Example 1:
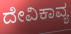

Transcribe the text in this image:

ದೇವಿಕಾವ್ಯ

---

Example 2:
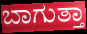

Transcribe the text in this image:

ಬಾಗುತ್ತಾ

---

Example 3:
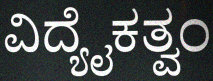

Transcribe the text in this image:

ವಿದ್ಯೈಕತ್ವಂ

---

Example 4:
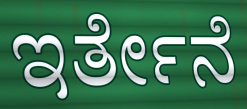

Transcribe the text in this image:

ಇರ್ತೇನೆ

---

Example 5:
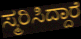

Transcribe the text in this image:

ಸ್ಮರಿಸಿದ್ದಾರೆ